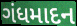
ગંધમાદન